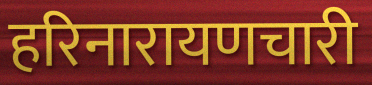
हरिनारायणचारी